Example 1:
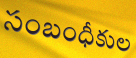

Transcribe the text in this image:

సంబంధీకుల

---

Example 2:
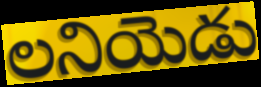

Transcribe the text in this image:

లనియెడు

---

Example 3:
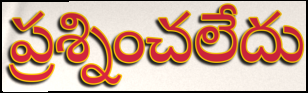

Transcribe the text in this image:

ప్రశ్నించలేదు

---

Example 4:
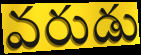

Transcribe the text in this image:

వరుడు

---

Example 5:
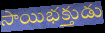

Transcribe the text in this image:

సాయిభక్తుడు